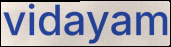
vidayam